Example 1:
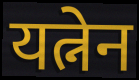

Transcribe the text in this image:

यत्नेन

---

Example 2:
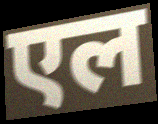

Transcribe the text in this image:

एल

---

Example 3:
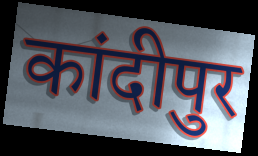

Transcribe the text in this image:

कांदीपुर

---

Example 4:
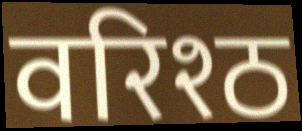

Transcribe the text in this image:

वरिश्ठ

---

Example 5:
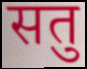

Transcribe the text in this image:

सतु